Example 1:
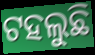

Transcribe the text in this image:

ଟହଲୁଛି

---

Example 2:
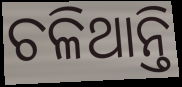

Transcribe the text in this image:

ଚଳିଥାନ୍ତି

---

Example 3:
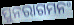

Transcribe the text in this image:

ପୁନରାଗମନଂ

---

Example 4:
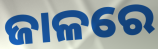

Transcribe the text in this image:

ଜାଳରେ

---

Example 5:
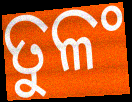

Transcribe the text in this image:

ତୁଳଂ